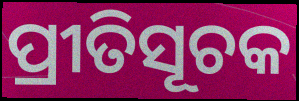
ପ୍ରୀତିସୂଚକ